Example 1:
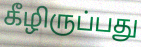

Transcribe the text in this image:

கீழிருப்பது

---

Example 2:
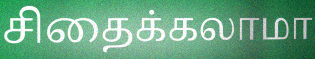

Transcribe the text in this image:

சிதைக்கலாமா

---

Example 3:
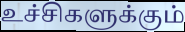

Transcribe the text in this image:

உச்சிகளுக்கும்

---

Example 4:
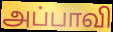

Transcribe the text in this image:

அப்பாவி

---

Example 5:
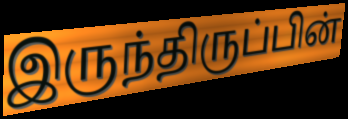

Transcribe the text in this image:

இருந்திருப்பின்